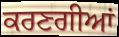
ਕਰਣਗੀਆਂ